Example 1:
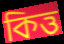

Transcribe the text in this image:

কিত্ত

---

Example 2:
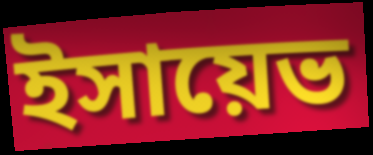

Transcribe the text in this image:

ইসায়েভ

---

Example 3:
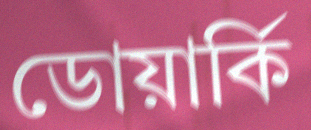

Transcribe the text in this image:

ডোয়ার্কি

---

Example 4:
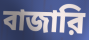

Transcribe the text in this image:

বাজারি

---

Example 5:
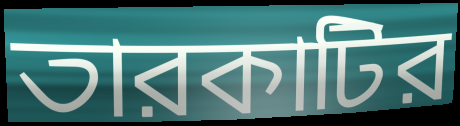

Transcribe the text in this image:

তারকাটির